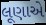
લૂણાએ